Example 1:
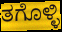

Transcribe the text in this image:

ತಗೊಳ್ಳಿ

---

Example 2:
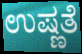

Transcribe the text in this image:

ಉಷ್ಣತೆ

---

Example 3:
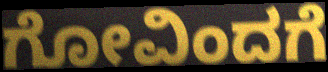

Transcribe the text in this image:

ಗೋವಿಂದಗೆ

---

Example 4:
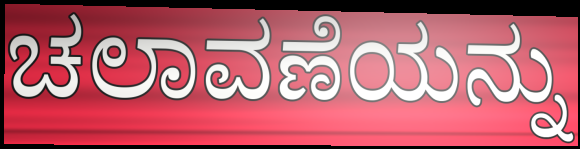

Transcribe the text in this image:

ಚಲಾವಣೆಯನ್ನು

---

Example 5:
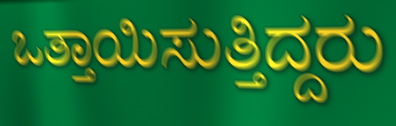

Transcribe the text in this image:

ಒತ್ತಾಯಿಸುತ್ತಿದ್ದರು